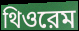
থিওরেম